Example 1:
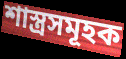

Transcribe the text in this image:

শাস্ত্ৰসমূহক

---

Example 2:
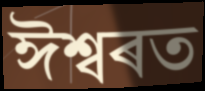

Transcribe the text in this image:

ঈশ্বৰত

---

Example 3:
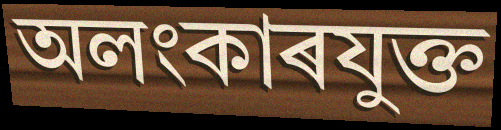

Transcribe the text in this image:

অলংকাৰযুক্ত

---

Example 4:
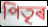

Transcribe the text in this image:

পিতৃৰ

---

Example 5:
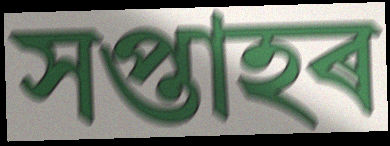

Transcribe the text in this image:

সপ্তাহৰ